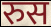
रुस